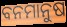
ବନମାନୁଷ